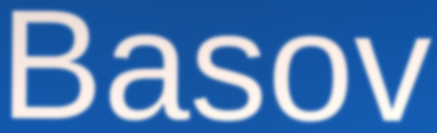
Basov